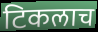
टिकलाच